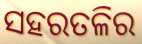
ସହରତଳିର